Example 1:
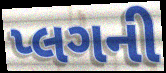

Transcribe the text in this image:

પ્લગની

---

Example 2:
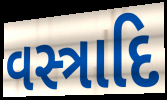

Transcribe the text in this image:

વસ્ત્રાદિ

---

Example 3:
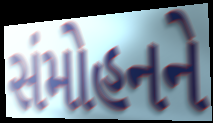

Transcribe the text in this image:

સંમોહનને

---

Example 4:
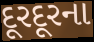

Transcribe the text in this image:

દૂરદૂરના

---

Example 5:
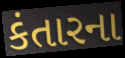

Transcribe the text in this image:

કંતારના